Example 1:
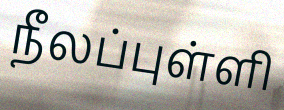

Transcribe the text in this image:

நீலப்புள்ளி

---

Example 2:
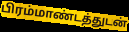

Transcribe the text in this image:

பிரம்மாண்டத்துடன்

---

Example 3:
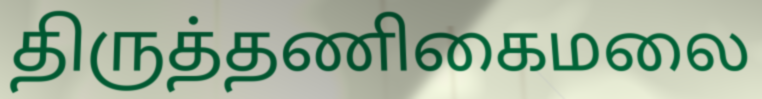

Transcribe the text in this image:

திருத்தணிகைமலை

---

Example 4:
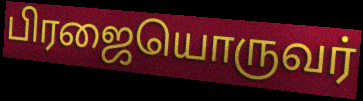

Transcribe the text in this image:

பிரஜையொருவர்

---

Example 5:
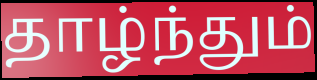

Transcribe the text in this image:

தாழ்ந்தும்